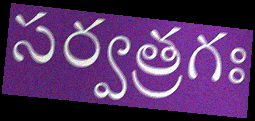
సర్వత్రగః